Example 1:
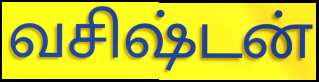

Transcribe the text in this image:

வசிஷ்டன்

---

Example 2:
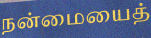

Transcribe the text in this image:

நன்மையைத்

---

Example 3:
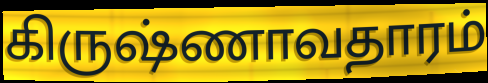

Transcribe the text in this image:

கிருஷ்ணாவதாரம்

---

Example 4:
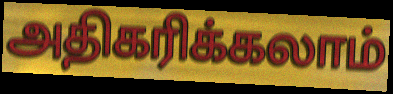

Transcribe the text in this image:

அதிகரிக்கலாம்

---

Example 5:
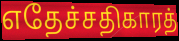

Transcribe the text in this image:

எதேச்சதிகாரத்